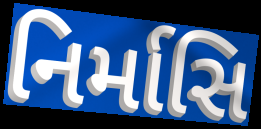
નિર્માસિ